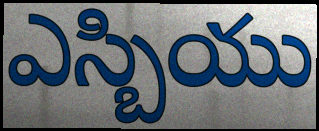
ఎస్బియు